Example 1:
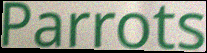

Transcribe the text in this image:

Parrots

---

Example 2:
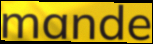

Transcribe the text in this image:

mande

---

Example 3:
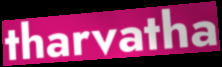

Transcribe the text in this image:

tharvatha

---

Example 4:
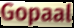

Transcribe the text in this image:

Gopaal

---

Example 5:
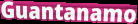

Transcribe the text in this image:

Guantanamo